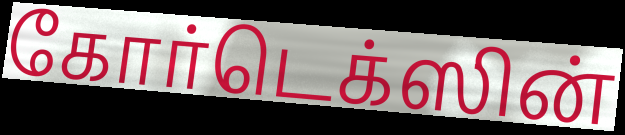
கோர்டெக்ஸின்